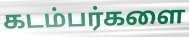
கடம்பர்களை